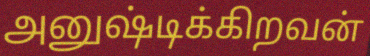
அனுஷ்டிக்கிறவன்